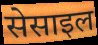
सेसाइल